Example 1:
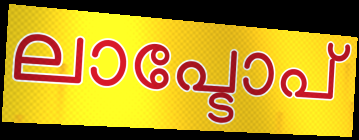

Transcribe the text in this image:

ലാപ്ടോപ്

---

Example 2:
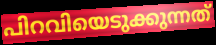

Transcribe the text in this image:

പിറവിയെടുക്കുന്നത്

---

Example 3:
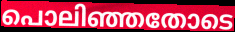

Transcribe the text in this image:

പൊലിഞ്ഞതോടെ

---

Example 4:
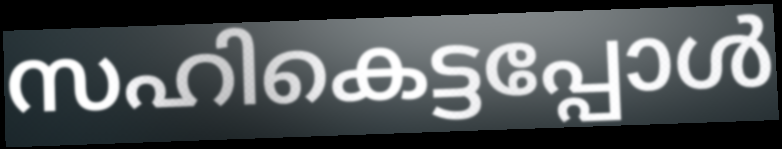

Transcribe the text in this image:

സഹികെട്ടപ്പോൾ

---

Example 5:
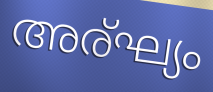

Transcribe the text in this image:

അര്ഘ്യം